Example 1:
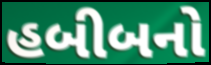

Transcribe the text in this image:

હબીબનો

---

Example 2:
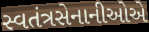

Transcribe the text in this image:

સ્વતંત્રસેનાનીઓએ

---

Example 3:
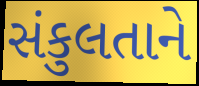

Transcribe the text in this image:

સંકુલતાને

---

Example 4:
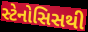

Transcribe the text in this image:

સ્ટેનોસિસથી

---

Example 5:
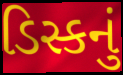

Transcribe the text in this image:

ડિસ્કનું